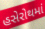
હસેરોથમાં